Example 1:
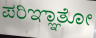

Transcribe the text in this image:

ಪರಿಞ್ಞಾತೋ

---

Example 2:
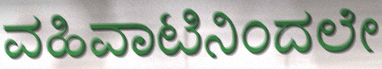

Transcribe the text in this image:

ವಹಿವಾಟಿನಿಂದಲೇ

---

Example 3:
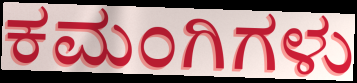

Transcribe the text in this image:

ಕಮಂಗಿಗಳು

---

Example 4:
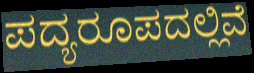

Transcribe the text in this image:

ಪದ್ಯರೂಪದಲ್ಲಿವೆ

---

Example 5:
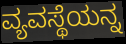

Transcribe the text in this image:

ವ್ಯವಸ್ಥೆಯನ್ನ